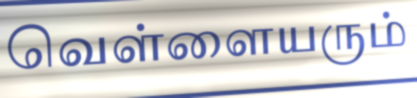
வெள்ளையரும்